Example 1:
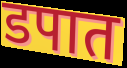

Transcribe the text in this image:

डपात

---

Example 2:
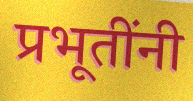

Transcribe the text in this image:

प्रभूतींनी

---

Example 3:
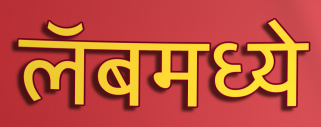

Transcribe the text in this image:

लॅबमध्ये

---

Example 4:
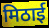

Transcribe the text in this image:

मिठाई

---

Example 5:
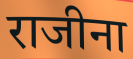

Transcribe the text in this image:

राजीना